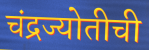
चंद्रज्योतीची